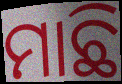
ମାଛି